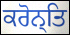
ਕਰੋਨ੍ਤਿ